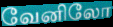
வேனிலோ